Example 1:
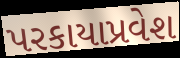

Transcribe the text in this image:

પરકાયાપ્રવેશ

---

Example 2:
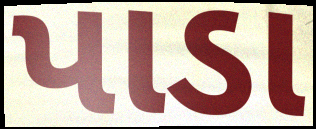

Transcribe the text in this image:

પાડા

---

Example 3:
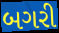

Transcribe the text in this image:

બગરી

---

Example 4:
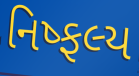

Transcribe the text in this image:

નિષ્ફલ્ય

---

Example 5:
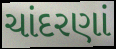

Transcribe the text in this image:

ચાંદરણાં